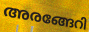
അരങ്ങേറി